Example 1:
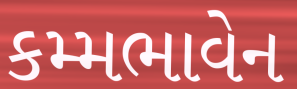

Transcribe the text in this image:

કમ્મભાવેન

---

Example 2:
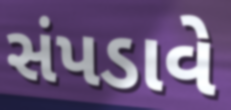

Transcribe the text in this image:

સંપડાવે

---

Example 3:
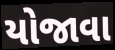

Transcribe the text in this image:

યોજાવા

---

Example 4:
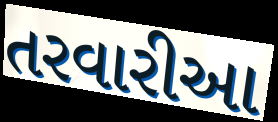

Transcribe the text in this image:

તરવારીઆ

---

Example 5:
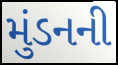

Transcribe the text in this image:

મુંડનની